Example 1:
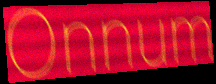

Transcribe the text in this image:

Onnum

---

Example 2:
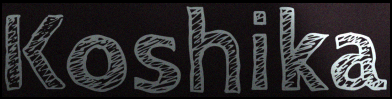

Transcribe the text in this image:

Koshika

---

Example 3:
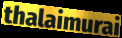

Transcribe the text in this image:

thalaimurai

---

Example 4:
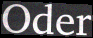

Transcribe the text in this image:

Oder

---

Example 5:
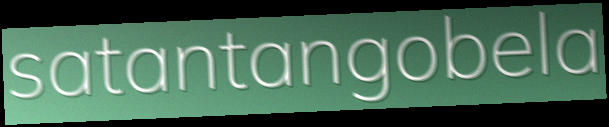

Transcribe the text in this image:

satantangobela